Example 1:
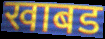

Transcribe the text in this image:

खाबड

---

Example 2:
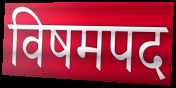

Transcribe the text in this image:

विषमपद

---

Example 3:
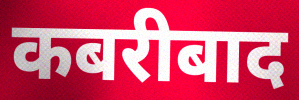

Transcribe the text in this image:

कबरीबाद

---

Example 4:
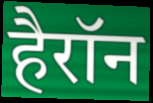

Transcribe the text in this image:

हैरॉन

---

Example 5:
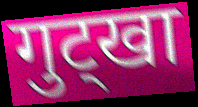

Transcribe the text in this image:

गुट्खा